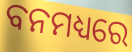
ବନମଧ୍ୟରେ